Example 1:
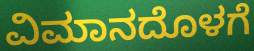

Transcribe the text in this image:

ವಿಮಾನದೊಳಗೆ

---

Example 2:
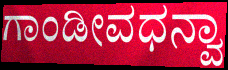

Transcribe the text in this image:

ಗಾಂಡೀವಧನ್ವಾ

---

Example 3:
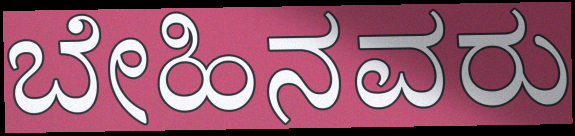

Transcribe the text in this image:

ಬೇಹಿನವರು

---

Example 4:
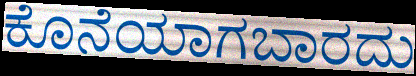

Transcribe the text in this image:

ಕೊನೆಯಾಗಬಾರದು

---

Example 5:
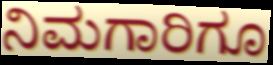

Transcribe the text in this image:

ನಿಮಗಾರಿಗೂ